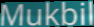
Mukbil